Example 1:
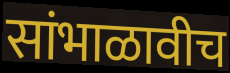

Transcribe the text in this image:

सांभाळावीच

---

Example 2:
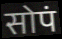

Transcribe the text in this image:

सोपं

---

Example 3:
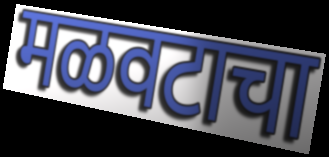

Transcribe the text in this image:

मळवटाचा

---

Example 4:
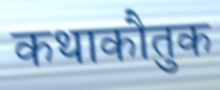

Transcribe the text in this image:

कथाकौतुक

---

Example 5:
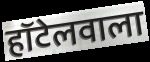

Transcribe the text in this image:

हॉटेलवाला